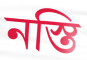
নস্তি